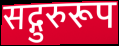
सद्गुरुरूप